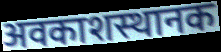
अवकाशस्थानक